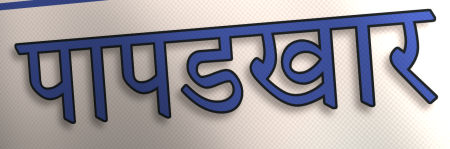
पापडखार